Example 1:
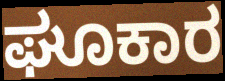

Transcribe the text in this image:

ಘೂಕಾರ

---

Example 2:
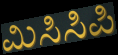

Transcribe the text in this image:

ಮಿಸಿಸಿಪಿ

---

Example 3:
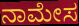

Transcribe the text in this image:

ನಾಮೇಸ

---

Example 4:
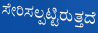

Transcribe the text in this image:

ಸೇರಿಸಲ್ಪಟ್ಟಿರುತ್ತದೆ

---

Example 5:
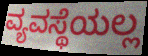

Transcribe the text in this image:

ವ್ಯವಸ್ಥೆಯಲ್ಲ